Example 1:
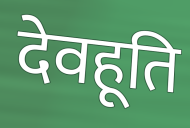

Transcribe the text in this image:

देवहूति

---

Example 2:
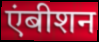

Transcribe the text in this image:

एंबीशन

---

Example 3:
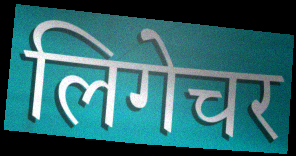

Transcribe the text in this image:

लिगेचर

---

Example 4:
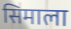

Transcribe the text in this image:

सिमाला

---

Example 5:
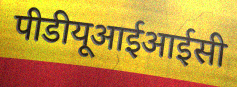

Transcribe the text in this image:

पीडीयूआईआईसी